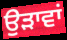
ਉੜਾਵਾਂ